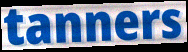
tanners